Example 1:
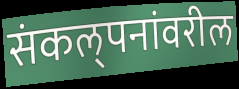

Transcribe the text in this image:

संकल्पनांवरील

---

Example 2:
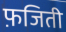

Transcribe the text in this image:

फ़जिती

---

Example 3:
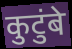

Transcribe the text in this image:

कुटुंबे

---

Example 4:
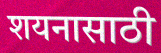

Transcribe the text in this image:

शयनासाठी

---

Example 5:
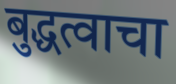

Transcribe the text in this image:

बुद्धत्वाचा